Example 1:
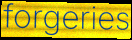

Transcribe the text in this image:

forgeries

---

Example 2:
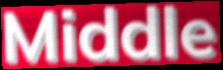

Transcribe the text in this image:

Middle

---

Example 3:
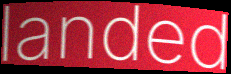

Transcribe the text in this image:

landed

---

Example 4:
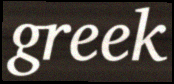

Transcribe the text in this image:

greek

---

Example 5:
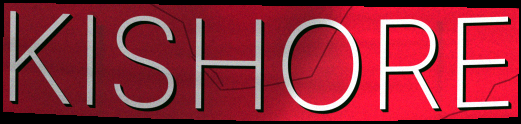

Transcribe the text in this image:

KISHORE